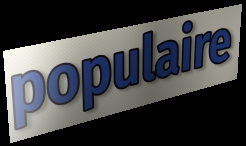
populaire